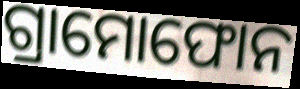
ଗ୍ରାମୋଫୋନ